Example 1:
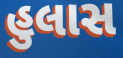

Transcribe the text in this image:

હુલાસ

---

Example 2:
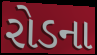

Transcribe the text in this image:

રોડના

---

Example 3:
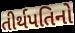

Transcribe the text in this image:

તીર્થપતિનો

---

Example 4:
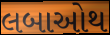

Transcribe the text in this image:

લબાઓથ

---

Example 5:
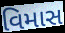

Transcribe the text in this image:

વિમાસ